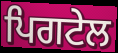
ਪਿਗਟੇਲ